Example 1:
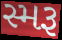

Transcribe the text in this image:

સ્મરૂ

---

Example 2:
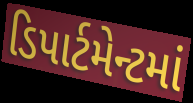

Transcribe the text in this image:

ડિપાર્ટમેન્ટમાં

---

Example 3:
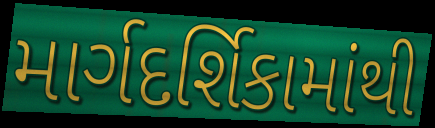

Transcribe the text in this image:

માર્ગદર્શિકામાંથી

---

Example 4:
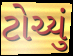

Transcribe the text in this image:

ટોચ્યું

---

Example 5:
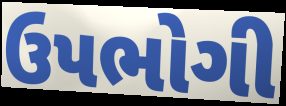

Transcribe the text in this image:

ઉપભોગી